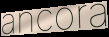
ancora